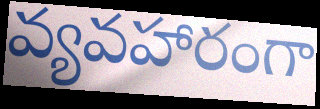
వ్యవహారంగా